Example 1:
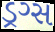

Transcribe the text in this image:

ડ્રગ્સ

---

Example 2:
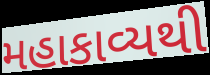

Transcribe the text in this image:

મહાકાવ્યથી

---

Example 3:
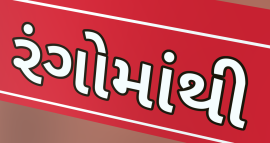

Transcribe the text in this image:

રંગોમાંથી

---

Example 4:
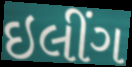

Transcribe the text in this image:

ઇલીંગ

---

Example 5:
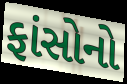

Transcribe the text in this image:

ફાંસોનો